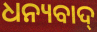
ଧନ୍ୟବାଦ୍